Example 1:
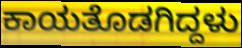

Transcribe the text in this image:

ಕಾಯತೊಡಗಿದ್ದಳು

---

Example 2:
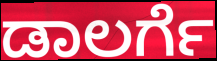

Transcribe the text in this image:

ಡಾಲರ್ಗೆ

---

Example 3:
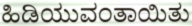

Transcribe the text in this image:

ಹಿಡಿಯುವಂತಾಯಿತು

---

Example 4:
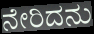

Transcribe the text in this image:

ನೇರಿದನು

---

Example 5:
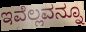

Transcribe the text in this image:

ಇವೆಲ್ಲವನ್ನೂ